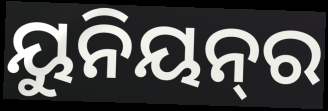
ୟୁନିୟନ୍‌ର